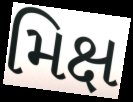
મિક્ષ